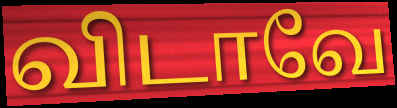
விடாவே